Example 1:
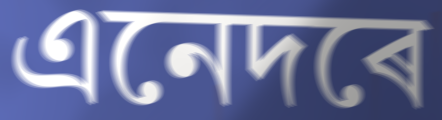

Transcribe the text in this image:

এনেদৰে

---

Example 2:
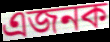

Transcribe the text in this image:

এজনক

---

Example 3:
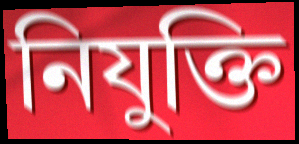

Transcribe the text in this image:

নিযুক্তি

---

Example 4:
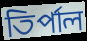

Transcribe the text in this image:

তিৰ্পাল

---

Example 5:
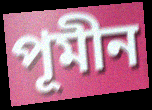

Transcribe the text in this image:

পূমীন